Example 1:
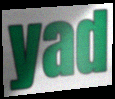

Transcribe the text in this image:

yad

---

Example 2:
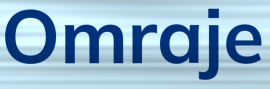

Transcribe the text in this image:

Omraje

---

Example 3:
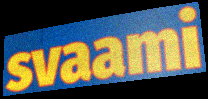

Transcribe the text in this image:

svaami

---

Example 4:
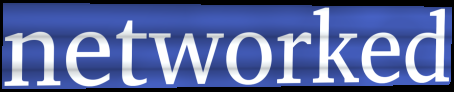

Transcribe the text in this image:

networked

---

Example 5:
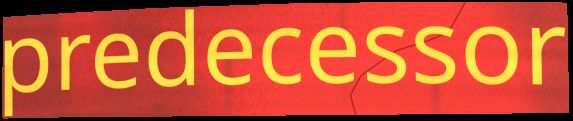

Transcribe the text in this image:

predecessor